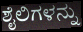
ಶೈಲಿಗಳನ್ನು